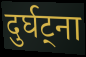
दुर्घट्ना